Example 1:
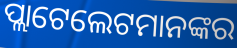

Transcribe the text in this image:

ପ୍ଲାଟେଲେଟମାନଙ୍କର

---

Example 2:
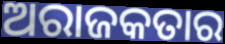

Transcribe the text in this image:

ଅରାଜକତାର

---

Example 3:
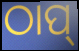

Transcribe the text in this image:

ଠାପ୍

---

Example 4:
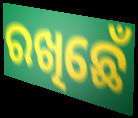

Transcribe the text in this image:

ରଖିଛେଁ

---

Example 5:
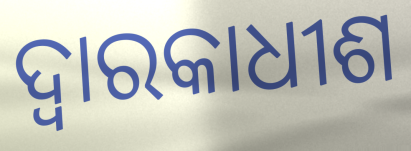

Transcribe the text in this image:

ଦ୍ୱାରକାଧୀଶ